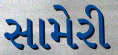
સામેરી